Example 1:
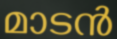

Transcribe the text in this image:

മാടൻ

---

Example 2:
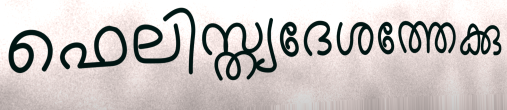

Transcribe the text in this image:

ഫെലിസ്ത്യദേശത്തേക്കു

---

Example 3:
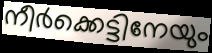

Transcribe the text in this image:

നീർക്കെട്ടിനേയും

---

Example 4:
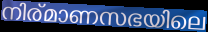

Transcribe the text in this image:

നിര്മാണസഭയിലെ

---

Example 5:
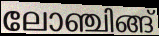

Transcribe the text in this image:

ലോഞ്ചിങ്ങ്